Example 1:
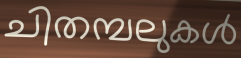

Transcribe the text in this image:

ചിതമ്പലുകൾ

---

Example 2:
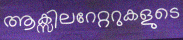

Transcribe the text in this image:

ആക്സിലറേറ്ററുകളുടെ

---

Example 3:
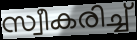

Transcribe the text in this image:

സ്വീകരിച്ച്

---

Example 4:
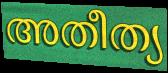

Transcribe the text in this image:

അതീത്യ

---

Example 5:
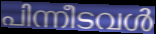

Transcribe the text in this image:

പിന്നീടവൾ